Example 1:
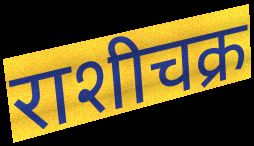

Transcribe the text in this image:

राशीचक्र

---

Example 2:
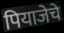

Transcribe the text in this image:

पियाजेचे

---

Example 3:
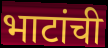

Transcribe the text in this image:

भाटांची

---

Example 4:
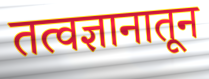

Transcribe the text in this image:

तत्वज्ञानातून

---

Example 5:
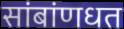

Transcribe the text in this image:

सांबांणधत